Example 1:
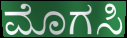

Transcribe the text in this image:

ಮೊಗಸಿ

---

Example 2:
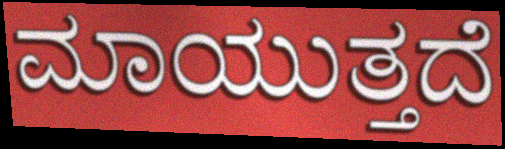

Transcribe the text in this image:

ಮಾಯುತ್ತದೆ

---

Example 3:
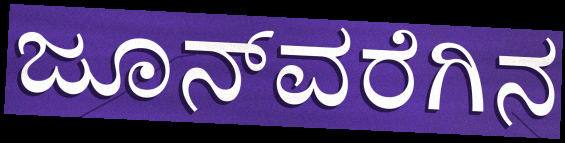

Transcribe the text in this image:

ಜೂನ್‌ವರೆಗಿನ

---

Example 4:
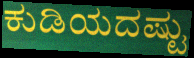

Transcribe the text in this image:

ಕುಡಿಯದಷ್ಟು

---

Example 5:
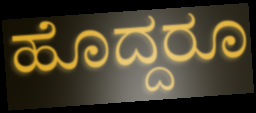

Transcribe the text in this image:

ಹೊದ್ದರೂ